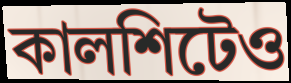
কালশিটেও